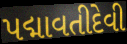
પદ્માવતીદેવી